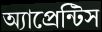
অ্যাপ্রেন্টিস